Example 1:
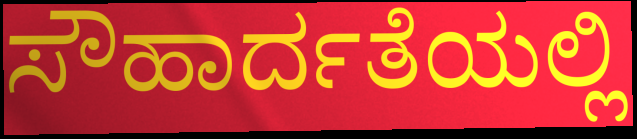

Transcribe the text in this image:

ಸೌಹಾರ್ದತೆಯಲ್ಲಿ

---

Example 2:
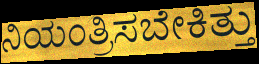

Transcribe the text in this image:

ನಿಯಂತ್ರಿಸಬೇಕಿತ್ತು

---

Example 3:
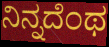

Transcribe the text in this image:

ನಿನ್ನದೆಂಥ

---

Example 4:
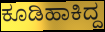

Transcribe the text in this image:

ಕೂಡಿಹಾಕಿದ್ದ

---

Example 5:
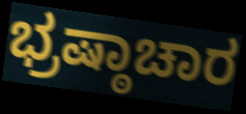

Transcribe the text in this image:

ಭ್ರಷ್ಠಾಚಾರ